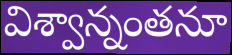
విశ్వాన్నంతనూ